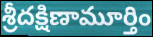
శ్రీదక్షిణామూర్తిం